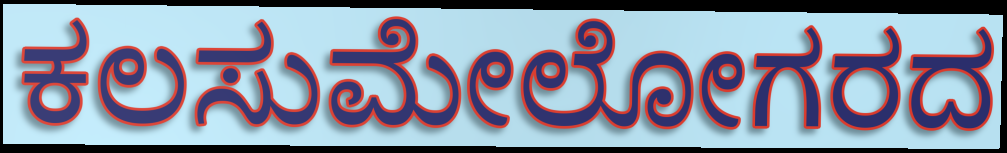
ಕಲಸುಮೇಲೋಗರದ